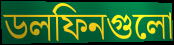
ডলফিনগুলো